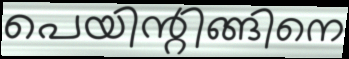
പെയിന്റിങ്ങിനെ